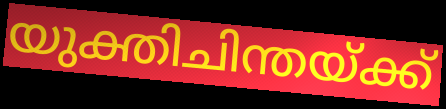
യുക്തിചിന്തയ്ക്ക്